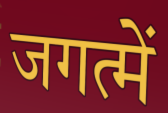
जगत्में